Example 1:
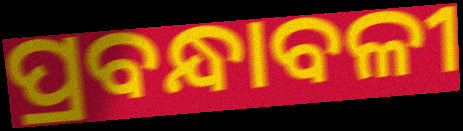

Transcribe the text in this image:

ପ୍ରବନ୍ଧାବଳୀ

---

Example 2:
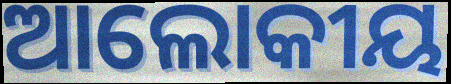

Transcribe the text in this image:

ଆଲୋକୀୟ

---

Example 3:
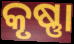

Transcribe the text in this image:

କୃଷ୍ଣା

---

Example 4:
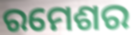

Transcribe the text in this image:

ରମେଶର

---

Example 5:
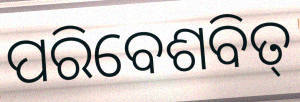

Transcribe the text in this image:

ପରିବେଶବିତ୍